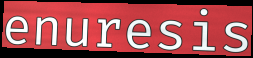
enuresis